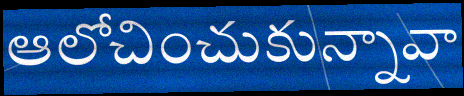
ఆలోచించుకున్నావా